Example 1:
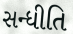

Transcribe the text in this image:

સન્ધીતિ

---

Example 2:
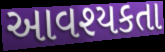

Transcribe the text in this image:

આવશ્યકતા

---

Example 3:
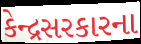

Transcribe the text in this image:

કેન્દ્રસરકારના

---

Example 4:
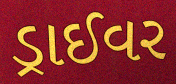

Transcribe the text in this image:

ડ્રાઈવર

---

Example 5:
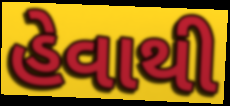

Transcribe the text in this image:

હેવાથી